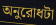
অনুরোধটা